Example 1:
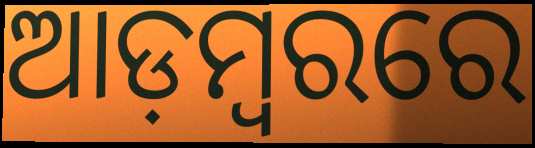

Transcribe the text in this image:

ଆଡ଼ମ୍ୱରରେ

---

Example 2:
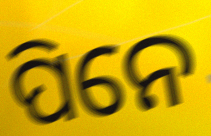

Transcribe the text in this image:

ପିନେ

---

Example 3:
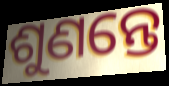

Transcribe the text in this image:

ଶୁଣନ୍ତେ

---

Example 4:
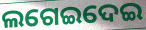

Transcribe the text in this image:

ଲଗେଇଦେଇ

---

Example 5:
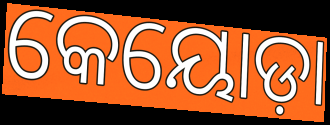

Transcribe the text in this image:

କେୟୋଡ଼ା